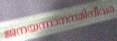
ജനയന്നാനന്ദമിന്ദീവര